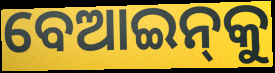
ବେଆଇନ୍‌କୁ